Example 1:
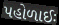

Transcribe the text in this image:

પહોળાઈઃ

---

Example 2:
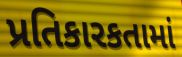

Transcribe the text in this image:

પ્રતિકારકતામાં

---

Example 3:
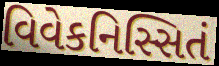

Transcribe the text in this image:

વિવેકનિસ્સિતં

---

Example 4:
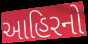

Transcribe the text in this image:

આહિરનો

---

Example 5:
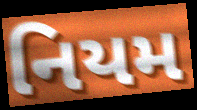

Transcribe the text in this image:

નિયમ